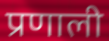
प्रणाली